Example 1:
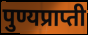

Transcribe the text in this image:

पुण्यप्राप्ती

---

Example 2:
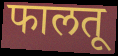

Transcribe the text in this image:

फालतू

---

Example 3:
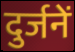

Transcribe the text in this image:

दुर्जनें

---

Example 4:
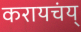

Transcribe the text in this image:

करायचंय्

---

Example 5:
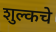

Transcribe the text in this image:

शुल्कचे